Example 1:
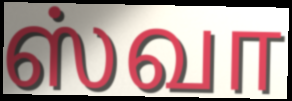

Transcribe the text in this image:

ஸ்வா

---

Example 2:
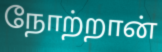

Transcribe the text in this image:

நோற்றான்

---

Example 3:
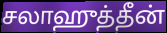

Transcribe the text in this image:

சலாஹுத்தீன்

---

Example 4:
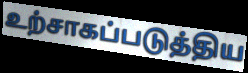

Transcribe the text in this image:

உற்சாகப்படுத்திய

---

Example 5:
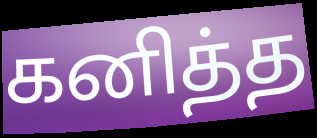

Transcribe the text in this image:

கனித்த